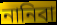
নানিবা